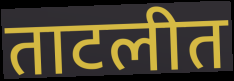
ताटलीत